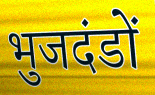
भुजदंडों